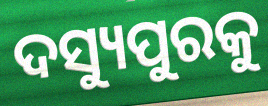
ଦସ୍ୟୁପୁରକୁ